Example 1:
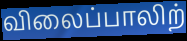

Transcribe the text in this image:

விலைப்பாலிற்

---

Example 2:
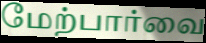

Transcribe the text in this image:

மேற்பார்வை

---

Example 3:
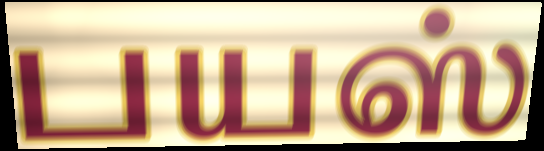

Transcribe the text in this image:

பயஸ்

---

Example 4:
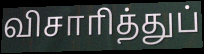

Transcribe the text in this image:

விசாரித்துப்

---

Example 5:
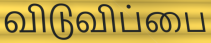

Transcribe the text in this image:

விடுவிப்பை